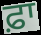
ਫ਼ਾ